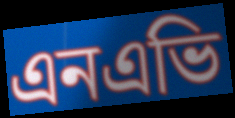
এনএভি